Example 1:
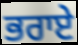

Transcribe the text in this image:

ਭਰਾਏ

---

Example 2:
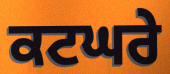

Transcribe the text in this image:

ਕਟਘਰੇ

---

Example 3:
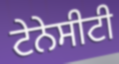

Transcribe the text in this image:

ਟੇਨੇਸੀਟੀ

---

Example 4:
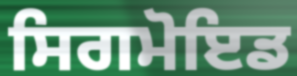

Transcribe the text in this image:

ਸਿਗਮੋਇਡ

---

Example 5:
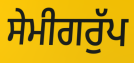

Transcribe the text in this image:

ਸੇਮੀਗਰੁੱਪ